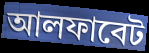
আলফাবেট